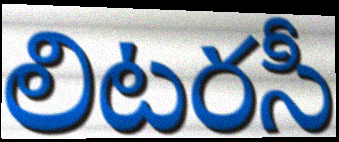
లిటరసీ